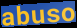
abuso